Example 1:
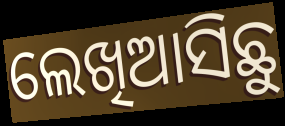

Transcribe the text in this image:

ଲେଖିଆସିଛୁ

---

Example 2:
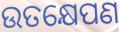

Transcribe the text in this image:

ଉତକ୍ଷେପଣ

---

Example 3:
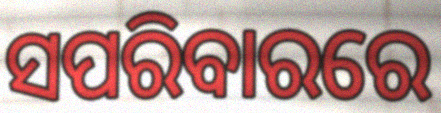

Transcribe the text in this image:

ସପରିବାରରେ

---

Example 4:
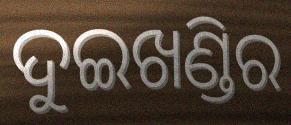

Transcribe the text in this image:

ଦୁଇଖଣ୍ଡିର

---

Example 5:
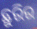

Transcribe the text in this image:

ଛୁରିର